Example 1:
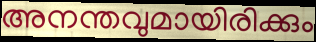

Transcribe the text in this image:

അനന്തവുമായിരിക്കും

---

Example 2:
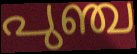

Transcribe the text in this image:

പുഞ്ച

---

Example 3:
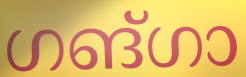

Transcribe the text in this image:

ഗങ്ഗാ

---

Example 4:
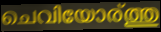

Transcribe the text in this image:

ചെവിയോര്ത്തു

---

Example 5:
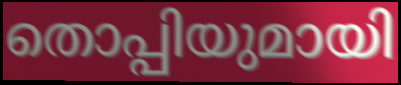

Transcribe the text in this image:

തൊപ്പിയുമായി